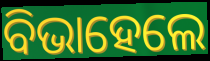
ବିଭାହେଲେ